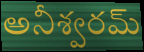
అనీశ్వరమ్